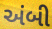
અંબી